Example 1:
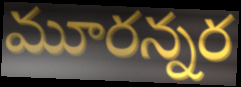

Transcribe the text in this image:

మూరన్నర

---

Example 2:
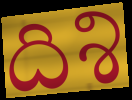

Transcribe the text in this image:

దిశి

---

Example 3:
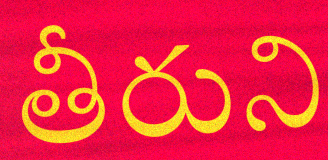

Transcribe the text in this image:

తీరుని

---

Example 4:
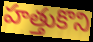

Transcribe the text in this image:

హత్తుకొని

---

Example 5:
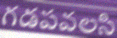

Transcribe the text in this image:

గడపవలసి